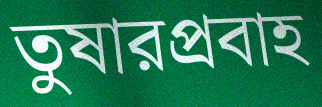
তুষারপ্রবাহ